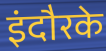
इंदौरके